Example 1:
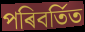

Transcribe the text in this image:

পৰিবৰ্তিত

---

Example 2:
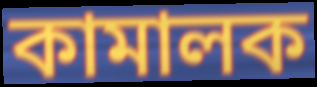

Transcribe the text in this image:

কামালক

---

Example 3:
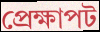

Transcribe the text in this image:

প্ৰেক্ষাপট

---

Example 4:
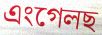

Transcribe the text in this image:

এংগেলছ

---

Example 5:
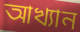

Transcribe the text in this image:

আখ্যান